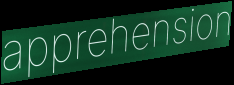
apprehension